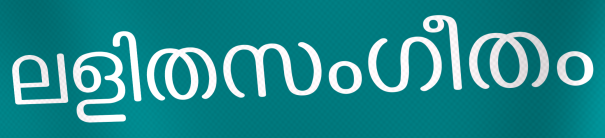
ലളിതസംഗീതം